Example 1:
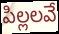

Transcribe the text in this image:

పిల్లలవే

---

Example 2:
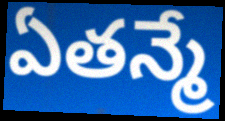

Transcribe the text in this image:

ఏతన్మే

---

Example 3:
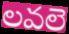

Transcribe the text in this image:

లవలె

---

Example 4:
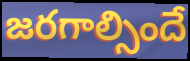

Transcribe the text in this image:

జరగాల్సిందే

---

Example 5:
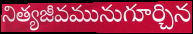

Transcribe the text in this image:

నిత్యజీవమునుగూర్చిన